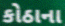
કોઠાના